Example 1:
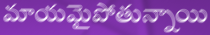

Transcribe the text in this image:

మాయమైపోతున్నాయి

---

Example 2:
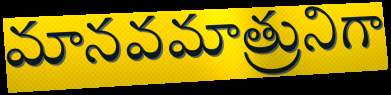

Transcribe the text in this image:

మానవమాత్రునిగా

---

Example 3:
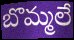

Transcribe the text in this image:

బొమ్మలే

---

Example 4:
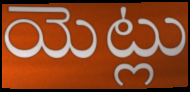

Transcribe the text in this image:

యెట్లు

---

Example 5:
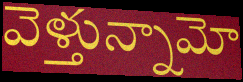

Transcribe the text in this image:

వెళ్తున్నామో